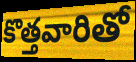
కొత్తవారితో